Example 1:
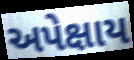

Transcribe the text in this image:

અપેક્ષાય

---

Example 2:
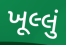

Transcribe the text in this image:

ખૂલ્લું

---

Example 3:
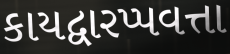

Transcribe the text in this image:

કાયદ્વારપ્પવત્તા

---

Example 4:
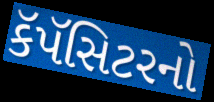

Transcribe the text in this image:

કૅપૅસિટરનો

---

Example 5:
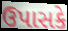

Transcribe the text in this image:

ઉપાસકે